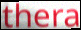
thera